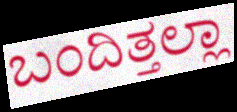
ಬಂದಿತ್ತಲ್ಲಾ